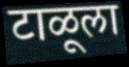
टाळूला